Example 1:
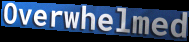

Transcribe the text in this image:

Overwhelmed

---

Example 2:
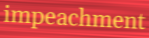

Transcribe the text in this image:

impeachment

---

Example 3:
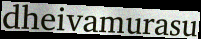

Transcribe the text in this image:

dheivamurasu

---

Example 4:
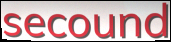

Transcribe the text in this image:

secound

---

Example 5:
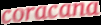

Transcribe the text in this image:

coracana